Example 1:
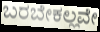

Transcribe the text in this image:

ಬರಬೇಕಲ್ಲವೇ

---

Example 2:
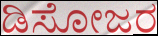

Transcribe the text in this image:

ಡಿಸೋಜರ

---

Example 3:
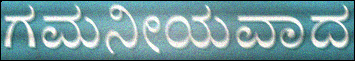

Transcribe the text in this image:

ಗಮನೀಯವಾದ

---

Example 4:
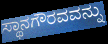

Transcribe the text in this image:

ಸ್ಥಾನಗೌರವವನ್ನು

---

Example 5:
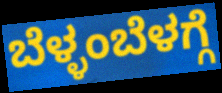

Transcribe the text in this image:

ಬೆಳ್ಳಂಬೆಳಗ್ಗೆ